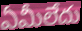
ఏమీలేదు